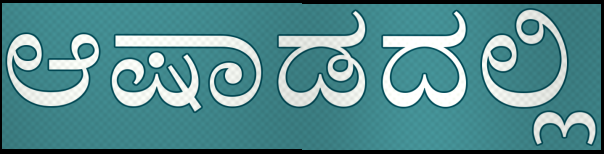
ಆಷಾಡದಲ್ಲಿ